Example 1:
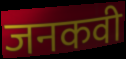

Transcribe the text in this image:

जनकवी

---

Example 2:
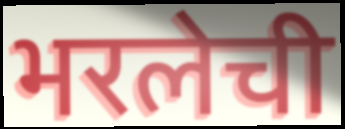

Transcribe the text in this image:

भरलेची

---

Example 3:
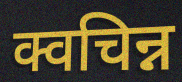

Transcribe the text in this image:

क्वचिन्न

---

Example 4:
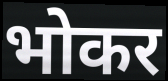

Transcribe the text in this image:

भोकर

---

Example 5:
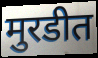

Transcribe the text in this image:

मुरडीत